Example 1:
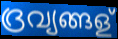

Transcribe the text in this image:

ദ്രവ്യങ്ങള്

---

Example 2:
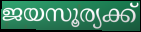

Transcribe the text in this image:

ജയസൂര്യക്ക്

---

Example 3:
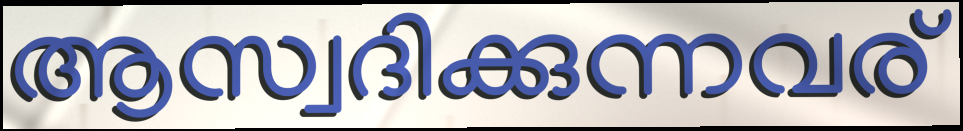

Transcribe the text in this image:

ആസ്വദിക്കുന്നവര്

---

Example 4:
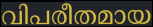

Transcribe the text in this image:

വിപരീതമായ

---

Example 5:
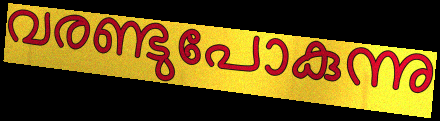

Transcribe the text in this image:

വരണ്ടുപോകുന്നു